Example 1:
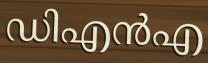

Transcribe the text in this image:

ഡിഎൻഎ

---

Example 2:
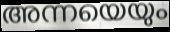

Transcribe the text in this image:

അന്നയെയും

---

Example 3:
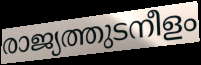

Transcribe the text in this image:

രാജ്യത്തുടനീളം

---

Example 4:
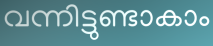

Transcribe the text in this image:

വന്നിട്ടുണ്ടാകാം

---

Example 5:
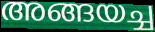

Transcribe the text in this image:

അങ്ങയച്ച